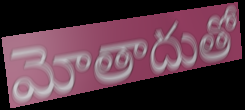
మోతాదుతో